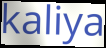
kaliya